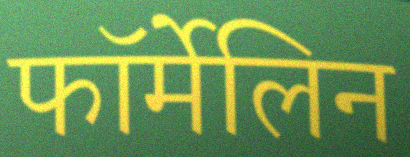
फॉर्मेलिन